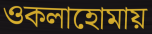
ওকলাহোমায়